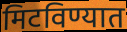
मिटविण्यात